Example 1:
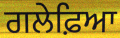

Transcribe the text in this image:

ਗਲੇਫ਼ਿਆ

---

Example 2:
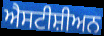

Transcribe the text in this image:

ਐਸਟੀਸ਼ੀਅਨ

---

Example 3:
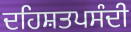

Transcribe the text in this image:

ਦਹਿਸ਼ਤਪਸੰਦੀ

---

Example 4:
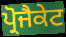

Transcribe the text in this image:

ਪ੍ਰੋਜੈਕੇਟ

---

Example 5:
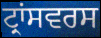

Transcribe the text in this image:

ਟ੍ਰਾਂਸਵਰਸ